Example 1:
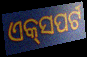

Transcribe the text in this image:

ଏକ୍‌ସପର୍ଟ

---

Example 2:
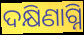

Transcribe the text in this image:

ଦକ୍ଷିଣାଗ୍ନି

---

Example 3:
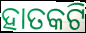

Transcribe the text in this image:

ହାତକଟି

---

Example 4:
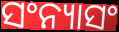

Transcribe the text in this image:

ସଂନ୍ୟାସଂ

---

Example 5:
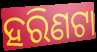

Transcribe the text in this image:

ହରିଣଟା